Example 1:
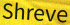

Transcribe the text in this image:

Shreve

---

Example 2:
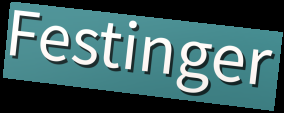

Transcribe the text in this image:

Festinger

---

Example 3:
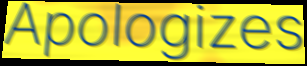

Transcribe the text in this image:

Apologizes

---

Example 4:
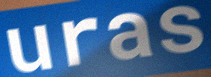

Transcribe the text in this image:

uras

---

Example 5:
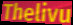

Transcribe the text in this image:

Thelivu